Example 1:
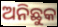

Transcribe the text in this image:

ଅନିଛୁକ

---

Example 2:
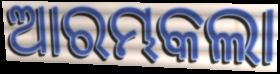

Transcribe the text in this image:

ଆରମ୍ଭକଲା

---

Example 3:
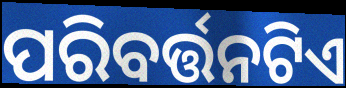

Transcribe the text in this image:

ପରିବର୍ତ୍ତନଟିଏ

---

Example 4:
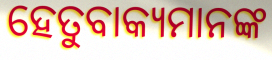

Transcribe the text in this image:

ହେତୁବାକ୍ୟମାନଙ୍କ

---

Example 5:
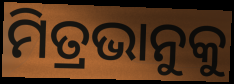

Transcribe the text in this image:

ମିତ୍ରଭାନୁକୁ